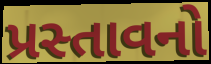
પ્રસ્તાવનો